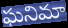
ఘనిమా